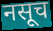
नसूच